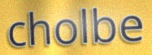
cholbe